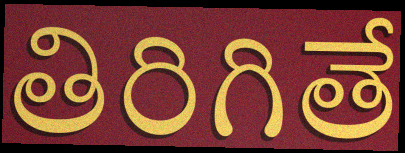
తిరిగితే